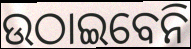
ଉଠାଇବେନି